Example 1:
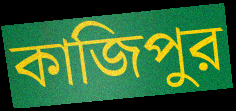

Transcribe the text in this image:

কাজিপুর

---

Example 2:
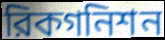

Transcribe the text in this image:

রিকগনিশন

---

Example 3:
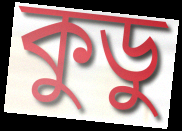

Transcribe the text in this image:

কুডু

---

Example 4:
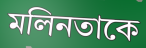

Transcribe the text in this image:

মলিনতাকে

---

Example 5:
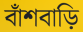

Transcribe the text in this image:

বাঁশবাড়ি